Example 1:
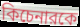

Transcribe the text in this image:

কিচেনারকে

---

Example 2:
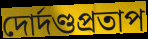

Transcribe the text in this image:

দোর্দণ্ডপ্রতাপ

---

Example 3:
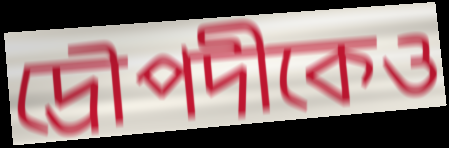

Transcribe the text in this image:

দ্রৌপদীকেও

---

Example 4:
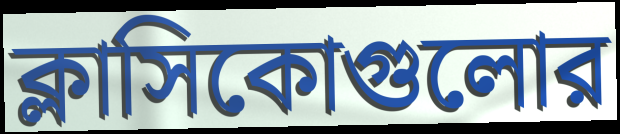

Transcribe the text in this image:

ক্লাসিকোগুলোর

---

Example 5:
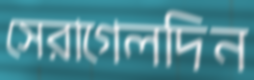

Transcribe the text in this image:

সেরাগেলদিন